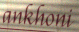
ankhoni